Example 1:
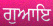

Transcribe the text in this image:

ਗੁਆਇ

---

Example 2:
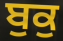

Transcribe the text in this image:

ਬੁਕੁ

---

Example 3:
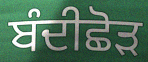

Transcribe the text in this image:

ਬੰਦੀਛੋੜ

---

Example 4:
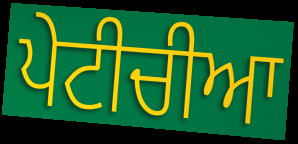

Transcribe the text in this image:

ਪੇਟੀਚੀਆ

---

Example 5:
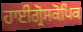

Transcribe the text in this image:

ਹਾਈਗ੍ਰੋਸਕੋਪਿਕ